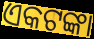
ଏକଟଙ୍କା